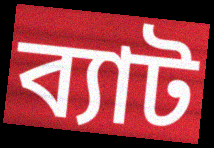
ব্যাট